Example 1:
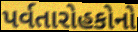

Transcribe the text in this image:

પર્વતારોહકોનો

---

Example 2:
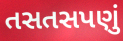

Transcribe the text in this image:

તસતસપણું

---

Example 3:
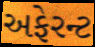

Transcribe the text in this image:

અફેરન્ટ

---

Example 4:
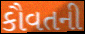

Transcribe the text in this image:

કૌવતની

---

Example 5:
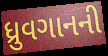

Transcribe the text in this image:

ધ્રુવગાનની